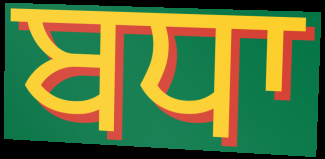
ਬਧਾ